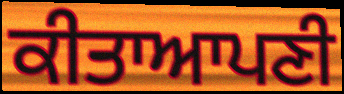
ਕੀਤਾਆਪਣੀ